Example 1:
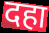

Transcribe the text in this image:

दहा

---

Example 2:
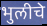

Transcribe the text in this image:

भुलीचे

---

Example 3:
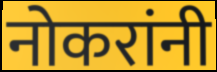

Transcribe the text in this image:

नोकरांनी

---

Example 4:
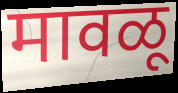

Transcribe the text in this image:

मावळू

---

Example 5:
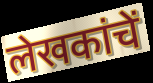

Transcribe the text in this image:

लेखकांचें